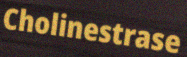
Cholinestrase